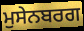
ਮੁਸੇਨਬਰਗ